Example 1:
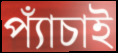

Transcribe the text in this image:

প্যাঁচাই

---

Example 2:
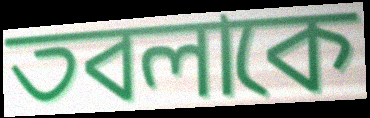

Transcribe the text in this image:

তবলাকে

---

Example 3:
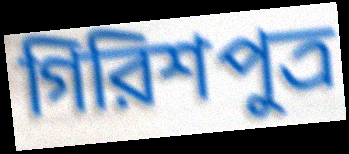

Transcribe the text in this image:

গিরিশপুত্র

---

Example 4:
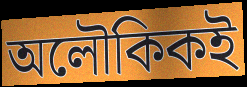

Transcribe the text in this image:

অলৌকিকই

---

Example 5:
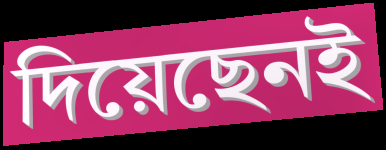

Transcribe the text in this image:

দিয়েছেনই